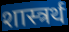
शास्त्रर्थ